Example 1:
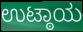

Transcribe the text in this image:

ಉಟ್ಠಾಯ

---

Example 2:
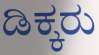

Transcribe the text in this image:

ಡಿಕ್ಕರು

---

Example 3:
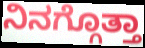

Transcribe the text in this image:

ನಿನಗ್ಗೊತ್ತಾ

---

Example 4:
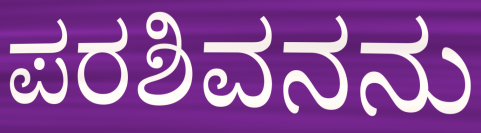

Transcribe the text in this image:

ಪರಶಿವನನು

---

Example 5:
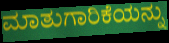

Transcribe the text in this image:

ಮಾತುಗಾರಿಕೆಯನ್ನು